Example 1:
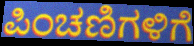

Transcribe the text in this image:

ಪಿಂಚಣಿಗಳಿಗೆ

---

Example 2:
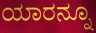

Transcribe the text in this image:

ಯಾರನ್ನೂ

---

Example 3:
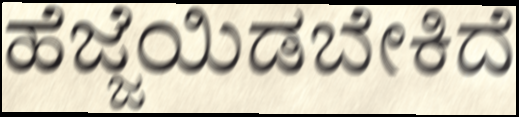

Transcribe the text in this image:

ಹೆಜ್ಜೆಯಿಡಬೇಕಿದೆ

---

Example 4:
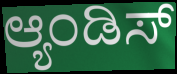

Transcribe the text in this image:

ಆ್ಯಂಡಿಸ್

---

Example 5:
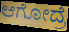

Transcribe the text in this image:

ಆಗೋದ್ರೆ